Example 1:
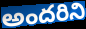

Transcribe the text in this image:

అందరిని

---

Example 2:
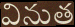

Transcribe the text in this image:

వినుత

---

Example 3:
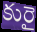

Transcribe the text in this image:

కురై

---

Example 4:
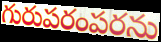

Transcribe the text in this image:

గురుపరంపరను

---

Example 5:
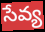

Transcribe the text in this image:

సేవ్య